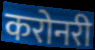
करोनरी